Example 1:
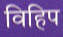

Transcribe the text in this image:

विहिप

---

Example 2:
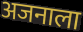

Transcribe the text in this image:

अजनाला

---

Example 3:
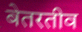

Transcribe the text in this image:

बेतरतीव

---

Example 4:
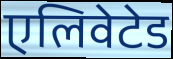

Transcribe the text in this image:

एलिवेटेड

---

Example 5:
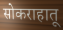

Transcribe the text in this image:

सोकराहातू